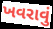
ખવરાવું